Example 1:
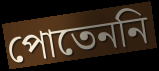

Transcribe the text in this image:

পোতেননি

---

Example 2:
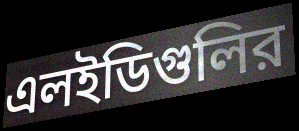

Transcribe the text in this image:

এলইডিগুলির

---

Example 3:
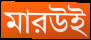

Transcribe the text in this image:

মারউই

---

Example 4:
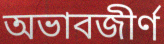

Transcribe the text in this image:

অভাবজীর্ণ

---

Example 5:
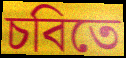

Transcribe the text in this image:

চবিতে